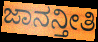
ಜಾನನ್ತೀತಿ